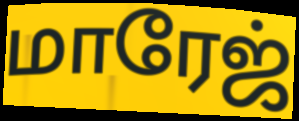
மாரேஜ்